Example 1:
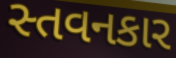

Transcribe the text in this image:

સ્તવનકાર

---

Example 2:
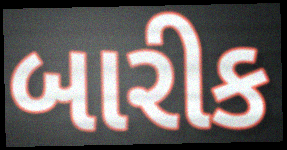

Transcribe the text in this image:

બારીક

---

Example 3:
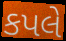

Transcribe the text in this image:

કપલે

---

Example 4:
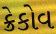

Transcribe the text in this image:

ક્રેકોવ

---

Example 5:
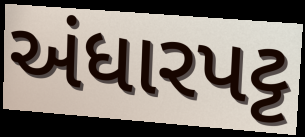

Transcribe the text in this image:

અંધારપટ્ટ